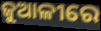
ଜୁଆଳୀରେ